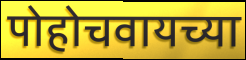
पोहोचवायच्या